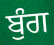
ਬੁੰਗ